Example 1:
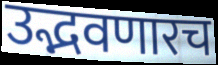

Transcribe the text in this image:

उद्भवणारच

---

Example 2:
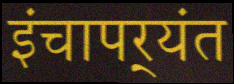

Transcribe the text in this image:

इंचापर्यंत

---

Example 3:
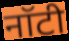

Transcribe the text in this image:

नॉटी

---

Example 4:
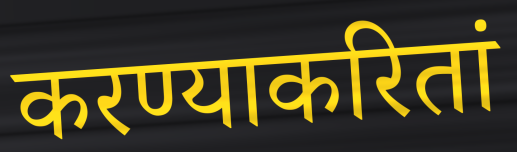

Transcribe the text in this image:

करण्याकरितां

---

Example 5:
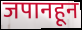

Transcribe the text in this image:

जपानहून